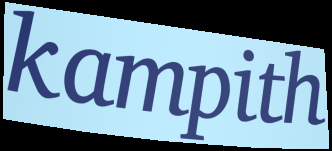
kampith